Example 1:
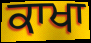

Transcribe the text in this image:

ਕਾਖਾ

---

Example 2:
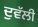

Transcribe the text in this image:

ਦੁਵੱਲੀ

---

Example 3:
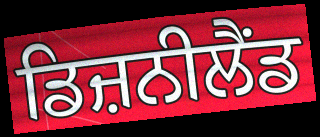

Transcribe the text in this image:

ਡਿਜ਼ਨੀਲੈਂਡ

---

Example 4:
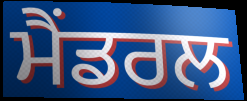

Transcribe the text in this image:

ਮੈਂਡਰਲ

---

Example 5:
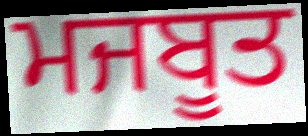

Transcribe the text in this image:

ਮਜਬੂਤ